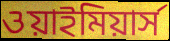
ওয়াইমিয়ার্স